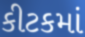
કીટકમાં